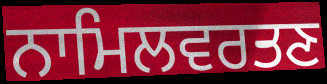
ਨਾਮਿਲਵਰਤਣ